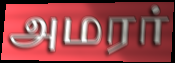
அமரர்